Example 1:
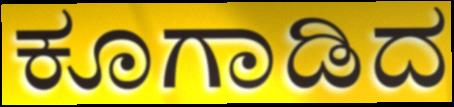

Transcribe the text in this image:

ಕೂಗಾಡಿದ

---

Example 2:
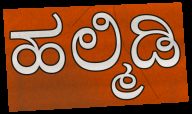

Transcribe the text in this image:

ಹಲ್ಮಿಡಿ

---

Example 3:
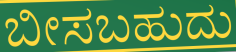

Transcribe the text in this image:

ಬೀಸಬಹುದು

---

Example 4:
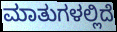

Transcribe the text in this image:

ಮಾತುಗಳಲ್ಲಿದೆ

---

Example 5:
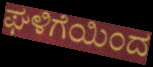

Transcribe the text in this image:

ಘಳಿಗೆಯಿಂದ